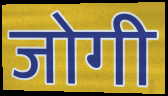
जोगी